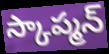
స్కాప్మన్